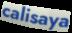
calisaya